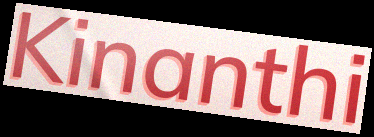
Kinanthi